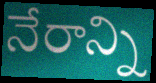
నేరాన్ని